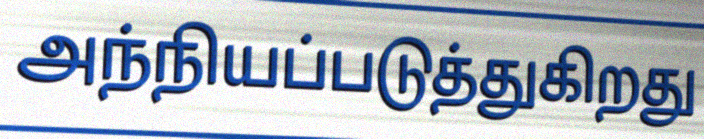
அந்நியப்படுத்துகிறது